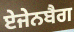
ਏਜੇਨਬੈਗ